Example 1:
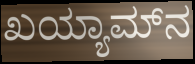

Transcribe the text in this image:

ಖಯ್ಯಾಮ್‌ನ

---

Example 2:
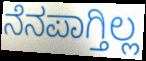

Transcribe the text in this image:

ನೆನಪಾಗ್ತಿಲ್ಲ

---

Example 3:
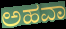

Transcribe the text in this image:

ಅಹವಾ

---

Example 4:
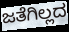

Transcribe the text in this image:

ಜತೆಗಿಲ್ಲದ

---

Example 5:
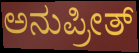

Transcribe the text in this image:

ಅನುಪ್ರೀತ್